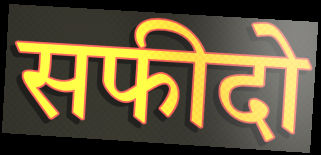
सफीदो